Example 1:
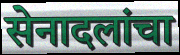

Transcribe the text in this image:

सेनादलांचा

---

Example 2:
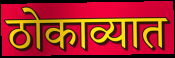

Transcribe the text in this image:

ठोकाव्यात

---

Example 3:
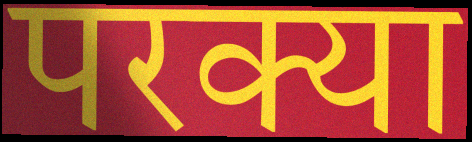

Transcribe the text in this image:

परक्या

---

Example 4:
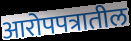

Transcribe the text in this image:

आरोपपत्रातील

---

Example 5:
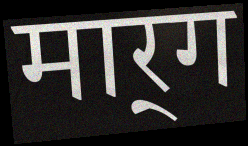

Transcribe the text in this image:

मार्ग